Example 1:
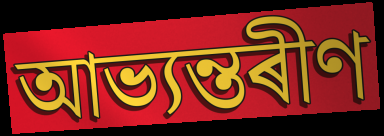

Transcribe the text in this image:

আভ্যন্তৰীণ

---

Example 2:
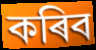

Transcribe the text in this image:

কৰিব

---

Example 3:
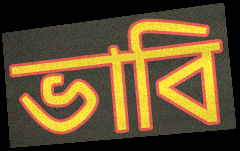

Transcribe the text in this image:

ভাবি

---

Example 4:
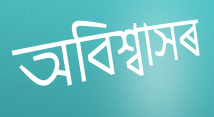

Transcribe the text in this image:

অবিশ্বাসৰ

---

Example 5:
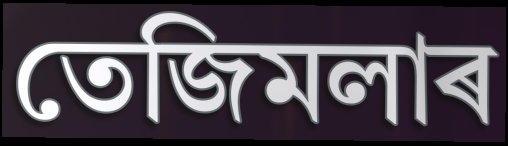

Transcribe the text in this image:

তেজিমলাৰ